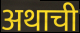
अथाची